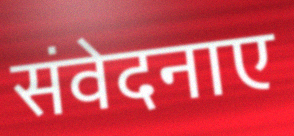
संवेदनाए